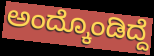
ಅಂದ್ಕೊಂಡಿದ್ದೆ